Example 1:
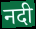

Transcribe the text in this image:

नदी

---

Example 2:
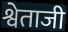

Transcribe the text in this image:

श्वेताजी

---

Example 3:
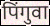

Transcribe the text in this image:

पिंगुवा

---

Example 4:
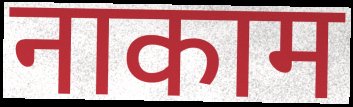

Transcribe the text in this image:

नाकाम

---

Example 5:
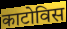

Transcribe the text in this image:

काटोविस